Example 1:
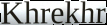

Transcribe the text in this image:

Khrekhr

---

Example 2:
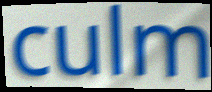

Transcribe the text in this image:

culm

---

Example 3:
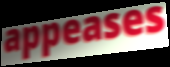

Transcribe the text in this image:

appeases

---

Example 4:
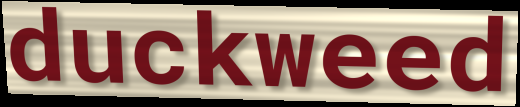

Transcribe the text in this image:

duckweed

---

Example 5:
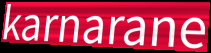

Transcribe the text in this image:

karnarane